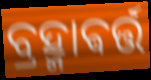
ବ୍ରହ୍ମାଵର୍ତ୍ତ